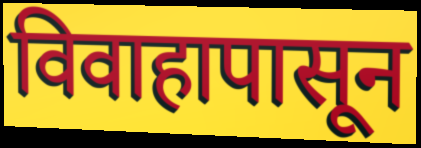
विवाहापासून